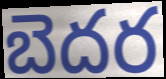
బెదర